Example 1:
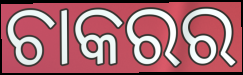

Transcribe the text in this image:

ଚାକରର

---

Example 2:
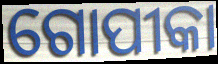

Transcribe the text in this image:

ଗୋପୀକା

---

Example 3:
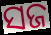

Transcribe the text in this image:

ସଜ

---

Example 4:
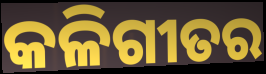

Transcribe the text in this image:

କଳିଗୀତର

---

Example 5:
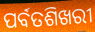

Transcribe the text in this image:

ପର୍ବତଶିଖରୀ